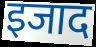
इजाद